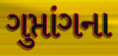
ગુપ્તાંગના